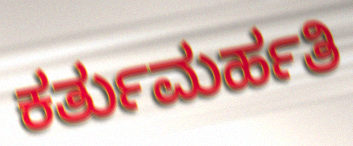
ಕರ್ತುಮರ್ಹತಿ